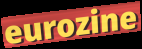
eurozine